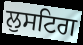
ਲੁਸਟਿਗ